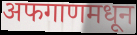
अफगाणमधून